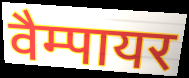
वैम्पायर